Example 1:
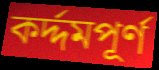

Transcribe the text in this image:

কর্দ্দমপূর্ণ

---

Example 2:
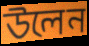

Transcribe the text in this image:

উলেন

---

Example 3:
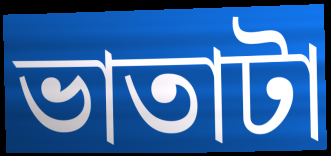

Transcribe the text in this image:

ভাতাটা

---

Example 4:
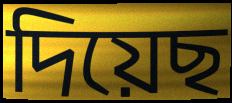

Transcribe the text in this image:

দিয়েছ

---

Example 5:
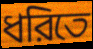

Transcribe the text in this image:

ধরিতে